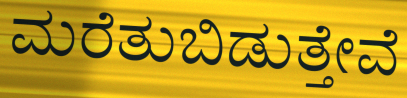
ಮರೆತುಬಿಡುತ್ತೇವೆ